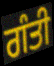
ਗੰਤੀ